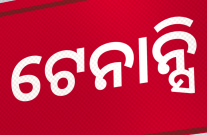
ଟେନାନ୍ସି